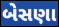
બેસણા